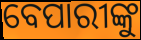
ବେପାରୀଙ୍କୁ